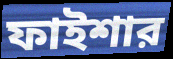
ফাইশার